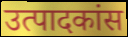
उत्पादकांस